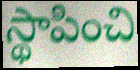
స్థాపించి